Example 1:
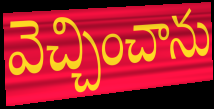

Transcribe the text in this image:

వెచ్చించాను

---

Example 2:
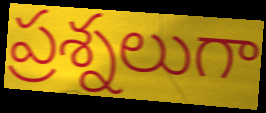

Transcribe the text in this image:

ప్రశ్నలుగా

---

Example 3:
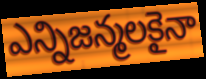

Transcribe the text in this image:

ఎన్నిజన్మలకైనా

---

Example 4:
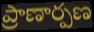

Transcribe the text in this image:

ప్రాణార్పణ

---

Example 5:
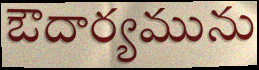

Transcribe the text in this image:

ఔదార్యమును